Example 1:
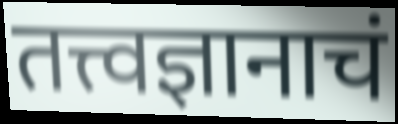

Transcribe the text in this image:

तत्त्वज्ञानाचं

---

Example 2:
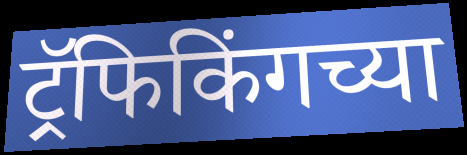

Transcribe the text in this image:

ट्रॅफिकिंगच्या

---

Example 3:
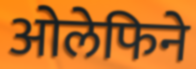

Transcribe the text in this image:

ओलेफिने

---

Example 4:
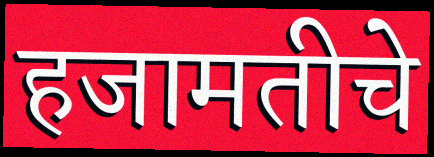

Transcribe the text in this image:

हजामतीचे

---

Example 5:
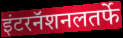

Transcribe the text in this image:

इंटरनॅशनलतर्फे